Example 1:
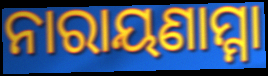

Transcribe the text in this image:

ନାରାୟଣାମ୍ମା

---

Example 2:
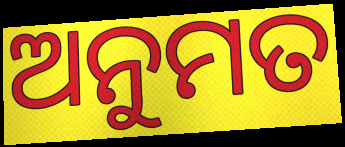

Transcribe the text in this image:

ଅନୁମତ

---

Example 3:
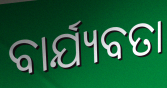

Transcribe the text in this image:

ବାର୍ଯ୍ୟବତା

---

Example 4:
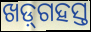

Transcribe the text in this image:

ଖଡ଼୍‌ଗହସ୍ତ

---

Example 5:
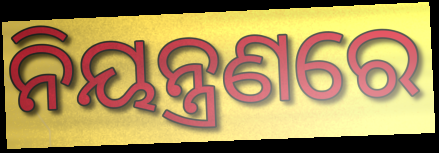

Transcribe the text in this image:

ନିୟନ୍ତ୍ରଣରେ